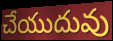
చేయుదువు